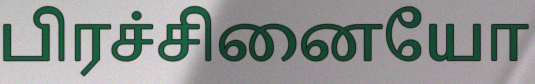
பிரச்சினையோ